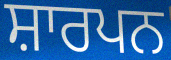
ਸ਼ਾਰਪਨ